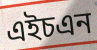
এইচএন